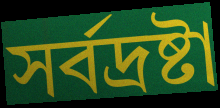
সর্বদ্রষ্টা